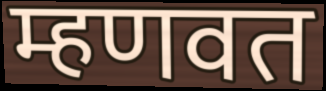
म्हणवत